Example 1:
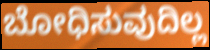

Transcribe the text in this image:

ಬೋಧಿಸುವುದಿಲ್ಲ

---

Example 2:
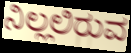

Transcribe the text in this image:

ನಿಲ್ಲಲಿರುವ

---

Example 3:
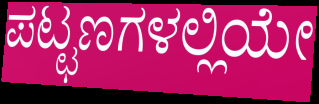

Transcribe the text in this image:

ಪಟ್ಟಣಗಳಲ್ಲಿಯೇ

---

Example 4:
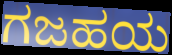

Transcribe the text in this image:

ಗಜಹಯ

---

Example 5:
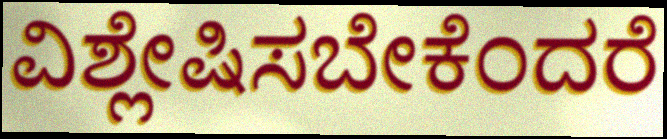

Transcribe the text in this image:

ವಿಶ್ಲೇಷಿಸಬೇಕೆಂದರೆ